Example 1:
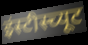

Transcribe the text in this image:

इंस्टीस्च्यूट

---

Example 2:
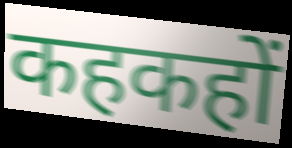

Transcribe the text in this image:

कहकहों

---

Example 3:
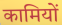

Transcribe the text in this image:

कामियों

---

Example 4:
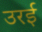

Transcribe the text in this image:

उरई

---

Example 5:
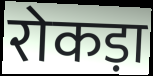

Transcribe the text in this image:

रोकड़ा